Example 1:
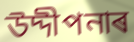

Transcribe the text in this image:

উদ্দীপনাৰ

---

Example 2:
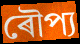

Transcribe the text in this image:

ৰৌপ্য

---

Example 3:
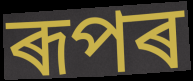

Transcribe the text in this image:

ৰূপৰ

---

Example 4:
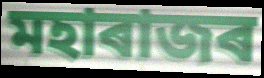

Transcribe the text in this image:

মহাৰাজৰ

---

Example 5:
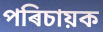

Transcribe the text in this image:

পৰিচায়ক